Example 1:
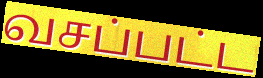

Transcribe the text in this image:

வசப்பட்ட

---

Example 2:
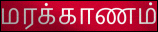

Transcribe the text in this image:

மரக்காணம்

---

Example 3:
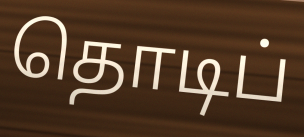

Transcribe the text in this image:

தொடிப்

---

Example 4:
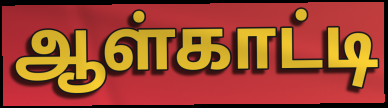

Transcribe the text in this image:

ஆள்காட்டி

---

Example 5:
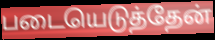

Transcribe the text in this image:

படையெடுத்தேன்